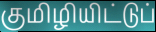
குமிழியிட்டுப்